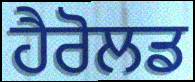
ਹੈਰੋਲਡ